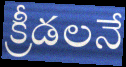
క్రీడలనే